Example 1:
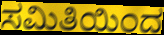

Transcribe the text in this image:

ಸಮಿತಿಯಿಂದ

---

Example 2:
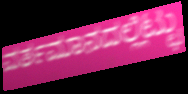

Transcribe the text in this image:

ವರ್ತಮಾನದಲ್ಲಿಟ್ಟು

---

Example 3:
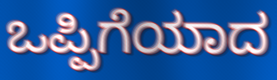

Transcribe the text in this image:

ಒಪ್ಪಿಗೆಯಾದ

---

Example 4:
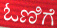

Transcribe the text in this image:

ಓಣಿಗೆ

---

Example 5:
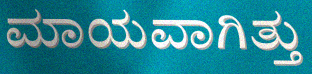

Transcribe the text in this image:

ಮಾಯವಾಗಿತ್ತು